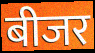
बीजर